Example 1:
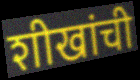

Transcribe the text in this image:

शीखांची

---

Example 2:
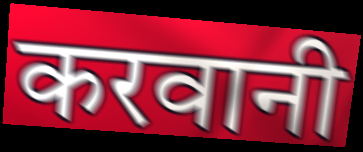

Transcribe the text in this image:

करवानी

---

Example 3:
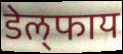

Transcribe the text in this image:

डेल्फाय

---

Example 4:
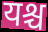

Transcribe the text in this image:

यश्च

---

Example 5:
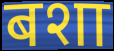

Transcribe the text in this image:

बशा